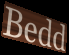
Bedd